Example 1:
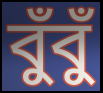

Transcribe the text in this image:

বুঁবুঁ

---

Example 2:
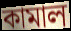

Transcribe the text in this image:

কামাল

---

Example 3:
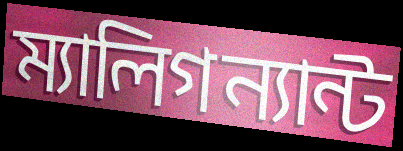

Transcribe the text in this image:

ম্যালিগন্যান্ট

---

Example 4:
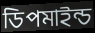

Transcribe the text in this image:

ডিপমাইন্ড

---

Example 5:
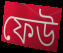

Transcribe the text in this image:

ফেউ